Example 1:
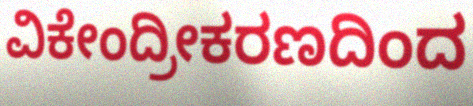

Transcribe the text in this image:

ವಿಕೇಂದ್ರೀಕರಣದಿಂದ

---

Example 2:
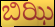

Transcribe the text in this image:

ಬಿಝಿ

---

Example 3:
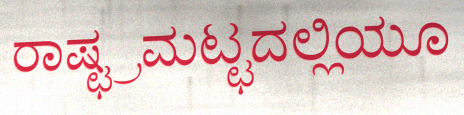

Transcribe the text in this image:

ರಾಷ್ಟ್ರಮಟ್ಟದಲ್ಲಿಯೂ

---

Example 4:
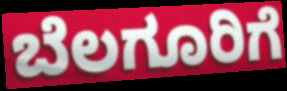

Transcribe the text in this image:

ಬೆಲಗೂರಿಗೆ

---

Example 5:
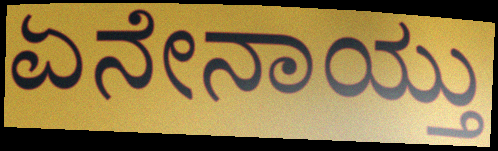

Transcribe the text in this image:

ಏನೇನಾಯ್ತು